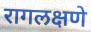
रागलक्षणे